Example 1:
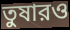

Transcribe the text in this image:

তুষারও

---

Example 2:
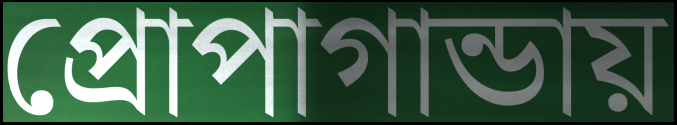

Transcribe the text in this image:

প্রোপাগান্ডায়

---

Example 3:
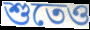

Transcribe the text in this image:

শুতেও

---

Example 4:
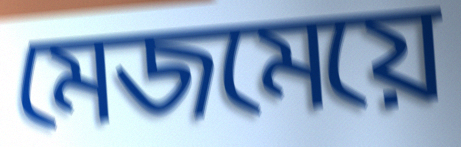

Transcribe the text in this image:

মেজমেয়ে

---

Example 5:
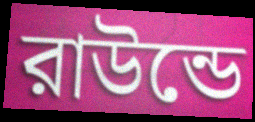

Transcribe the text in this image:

রাউন্ডে